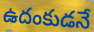
ఉదంకుడనే